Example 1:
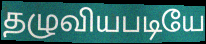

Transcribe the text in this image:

தழுவியபடியே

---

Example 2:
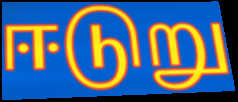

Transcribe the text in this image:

ஈடுறு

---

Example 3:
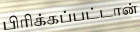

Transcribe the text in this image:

பிரிக்கப்பட்டான்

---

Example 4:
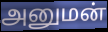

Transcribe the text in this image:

அனுமன்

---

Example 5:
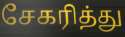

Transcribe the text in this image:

சேகரித்து